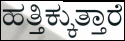
ಹತ್ತಿಕ್ಕುತ್ತಾರೆ